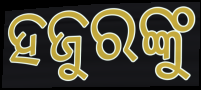
ହଜୁରଙ୍କୁ